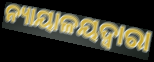
ନ୍ୟାୟାଳୟଦ୍ୱାରା